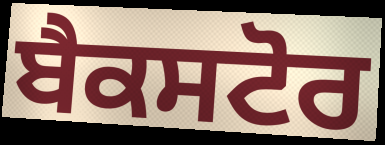
ਬੈਕਸਟੋਰ